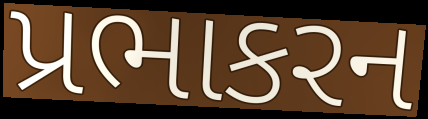
પ્રભાકરન